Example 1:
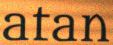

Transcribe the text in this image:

atan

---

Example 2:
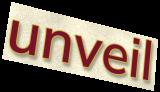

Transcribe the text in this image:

unveil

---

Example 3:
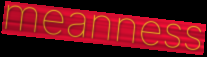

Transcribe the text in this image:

meanness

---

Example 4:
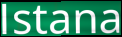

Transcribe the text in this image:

Istana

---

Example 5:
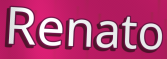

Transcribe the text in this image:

Renato